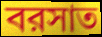
বরসাত